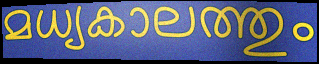
മധ്യകാലത്തും